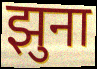
झुना